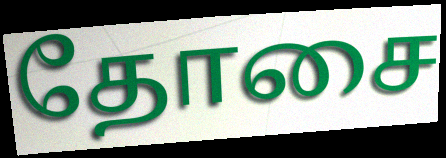
தோசை